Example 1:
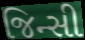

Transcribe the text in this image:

જિન્સી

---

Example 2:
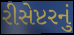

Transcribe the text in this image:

રીસેપ્ટરનું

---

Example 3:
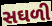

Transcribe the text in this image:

સઘળી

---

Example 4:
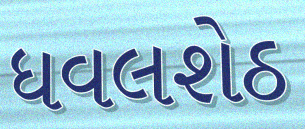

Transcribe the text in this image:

ધવલશેઠ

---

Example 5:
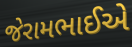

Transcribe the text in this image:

જેરામભાઈએ